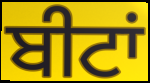
ਬੀਟਾਂ